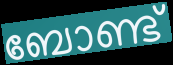
ബോണ്ട്